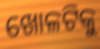
ଖୋଳଟିକୁ